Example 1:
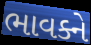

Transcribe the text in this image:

ભાવક્ને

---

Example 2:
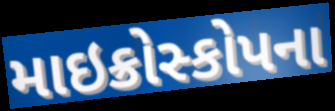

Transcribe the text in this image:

માઇક્રોસ્કોપના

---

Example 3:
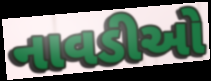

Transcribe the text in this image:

નાવડીઓ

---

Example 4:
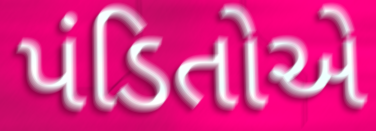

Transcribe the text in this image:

પંડિતોએ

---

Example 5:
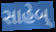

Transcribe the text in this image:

સાહેબ્